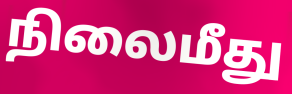
நிலைமீது